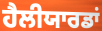
ਹੈਲੀਯਾਰਡਾਂ